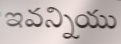
ఇవన్నియు